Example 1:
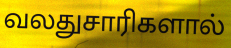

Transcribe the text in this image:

வலதுசாரிகளால்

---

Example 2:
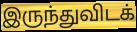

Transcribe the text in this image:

இருந்துவிடக்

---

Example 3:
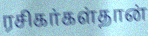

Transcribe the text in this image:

ரசிகர்கள்தான்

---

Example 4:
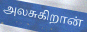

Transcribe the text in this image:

அலசுகிறான்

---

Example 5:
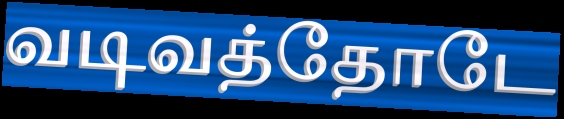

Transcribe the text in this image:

வடிவத்தோடே